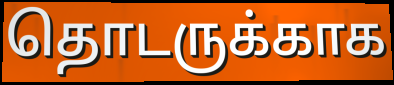
தொடருக்காக